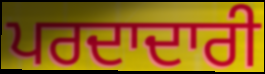
ਪਰਦਾਦਾਰੀ